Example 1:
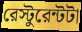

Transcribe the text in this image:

রেস্টুরেন্টটা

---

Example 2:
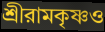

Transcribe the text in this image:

শ্রীরামকৃষ্ণও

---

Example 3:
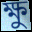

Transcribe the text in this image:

ক্ষু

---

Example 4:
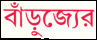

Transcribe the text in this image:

বাঁড়ুজ্যের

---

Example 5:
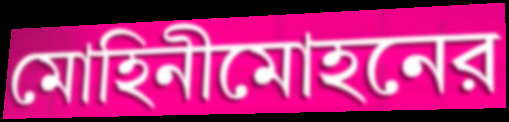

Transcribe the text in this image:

মোহিনীমোহনের